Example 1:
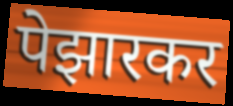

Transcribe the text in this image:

पेझारकर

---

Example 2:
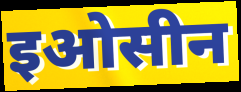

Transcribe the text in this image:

इओसीन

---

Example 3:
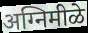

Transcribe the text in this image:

अग्निमीळे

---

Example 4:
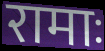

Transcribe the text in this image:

रामाः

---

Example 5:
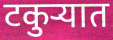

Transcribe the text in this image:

टकुर्‍यात